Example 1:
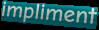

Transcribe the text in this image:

impliment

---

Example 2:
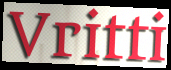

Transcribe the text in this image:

Vritti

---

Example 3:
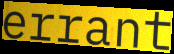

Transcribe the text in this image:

errant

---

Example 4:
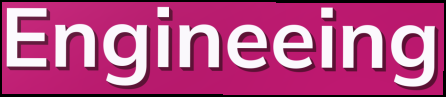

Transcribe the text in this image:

Engineeing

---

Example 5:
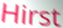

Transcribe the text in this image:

Hirst